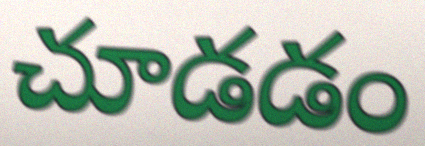
చూడడం